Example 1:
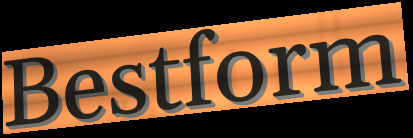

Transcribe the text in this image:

Bestform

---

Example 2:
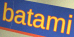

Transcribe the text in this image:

batami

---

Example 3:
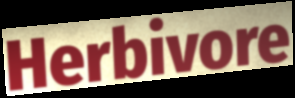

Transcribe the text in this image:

Herbivore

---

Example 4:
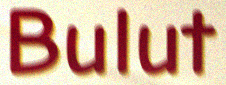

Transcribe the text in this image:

Bulut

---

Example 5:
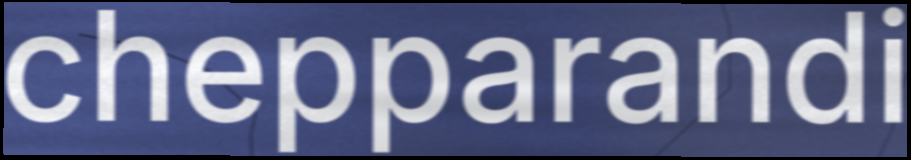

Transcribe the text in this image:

chepparandi